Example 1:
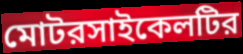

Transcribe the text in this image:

মোটরসাইকেলটির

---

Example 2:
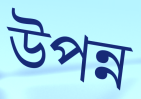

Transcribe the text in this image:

উপন্ন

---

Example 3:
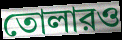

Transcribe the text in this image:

তোলারও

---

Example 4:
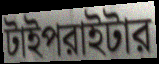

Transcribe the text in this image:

টাইপরাইটার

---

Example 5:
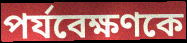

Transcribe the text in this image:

পর্যবেক্ষণকে